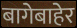
बागेबाहेर